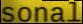
sonal